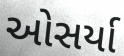
ઓસર્યા